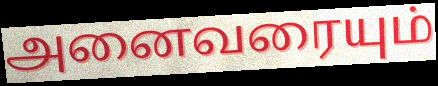
அனைவரையும்